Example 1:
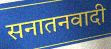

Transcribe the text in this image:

सनातनवादी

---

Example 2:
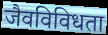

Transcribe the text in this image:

जैवविविधता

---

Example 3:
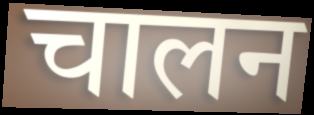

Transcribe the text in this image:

चालन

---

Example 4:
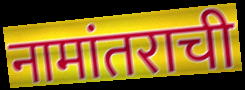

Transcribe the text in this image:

नामांतराची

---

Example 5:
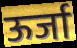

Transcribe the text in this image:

ऊर्जा